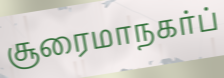
சூரைமாநகர்ப்